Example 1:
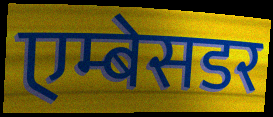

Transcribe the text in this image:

एम्‍बेसडर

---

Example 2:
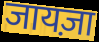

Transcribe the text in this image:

जायज़ा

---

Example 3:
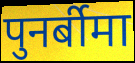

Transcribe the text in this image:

पुनर्बीमा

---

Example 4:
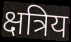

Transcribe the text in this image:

क्षत्रिय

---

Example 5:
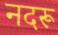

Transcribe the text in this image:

नदरू